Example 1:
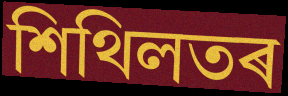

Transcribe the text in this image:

শিথিলতৰ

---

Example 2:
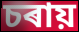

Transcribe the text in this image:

চৰায়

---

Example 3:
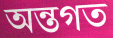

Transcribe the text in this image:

অন্তগত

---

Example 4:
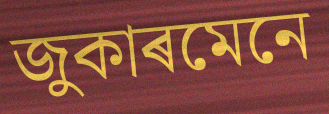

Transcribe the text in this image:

জুকাৰমেনে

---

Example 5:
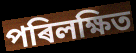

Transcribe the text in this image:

পৰিলক্ষিত